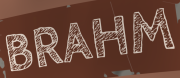
BRAHM